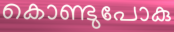
കൊണ്ടുപോകു